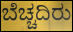
ಬೆಚ್ಚದಿರು